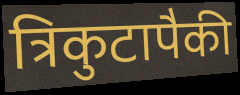
त्रिकुटापैकी